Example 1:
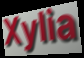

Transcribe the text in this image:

Xylia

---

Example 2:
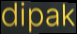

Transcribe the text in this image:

dipak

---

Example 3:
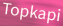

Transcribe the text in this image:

Topkapi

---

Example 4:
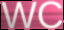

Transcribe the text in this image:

WC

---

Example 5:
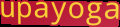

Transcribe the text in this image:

upayoga